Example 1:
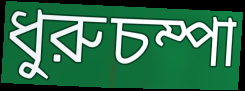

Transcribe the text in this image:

ধুরুচম্পা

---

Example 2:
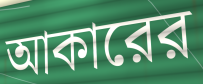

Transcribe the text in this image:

আকারের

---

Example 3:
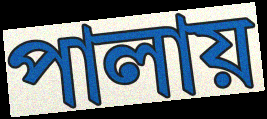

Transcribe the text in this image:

পালায়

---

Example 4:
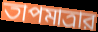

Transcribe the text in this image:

তাপমাত্রার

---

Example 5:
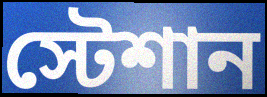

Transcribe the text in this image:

স্টেশান